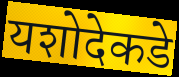
यशोदेकडे